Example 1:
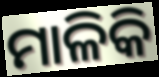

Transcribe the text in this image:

ମାଳିକି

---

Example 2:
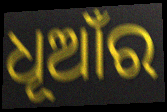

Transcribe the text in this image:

ଧୂଆଁର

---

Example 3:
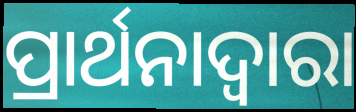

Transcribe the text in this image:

ପ୍ରାର୍ଥନାଦ୍ଵାରା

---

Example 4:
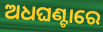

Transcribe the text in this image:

ଅଧଘଣ୍ଟାରେ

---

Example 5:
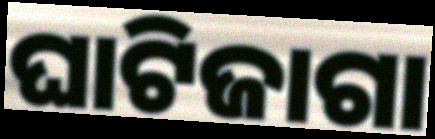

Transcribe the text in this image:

ଘାଟିଜାଗା